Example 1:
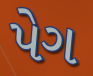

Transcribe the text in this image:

પેગ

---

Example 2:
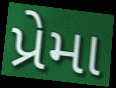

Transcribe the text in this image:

પ્રેમા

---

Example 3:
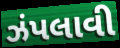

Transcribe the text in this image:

ઝંપલાવી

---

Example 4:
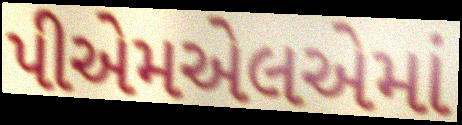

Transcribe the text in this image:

પીએમએલએમાં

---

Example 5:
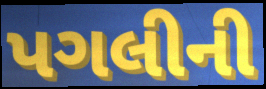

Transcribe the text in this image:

પગલીની